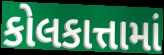
કોલકાત્તામાં